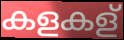
കളകള്